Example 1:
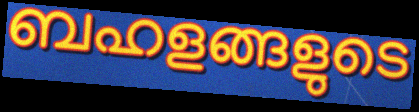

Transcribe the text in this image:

ബഹളങ്ങളുടെ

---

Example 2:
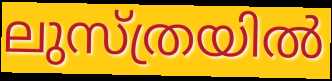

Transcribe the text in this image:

ലുസ്ത്രയിൽ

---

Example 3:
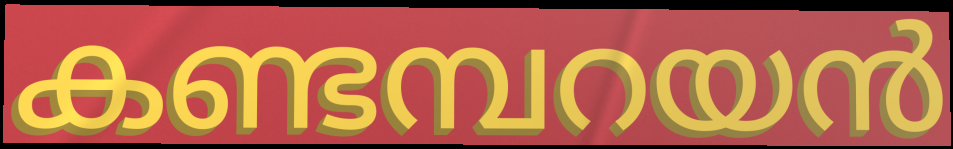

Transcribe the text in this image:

കണ്ടമ്പറയൻ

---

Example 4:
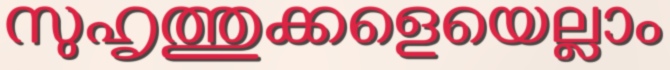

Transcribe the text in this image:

സുഹൃത്തുക്കളെയെല്ലാം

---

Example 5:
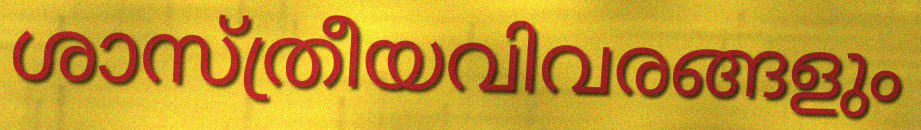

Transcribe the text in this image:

ശാസ്ത്രീയവിവരങ്ങളും